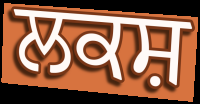
ਲਕਸ਼